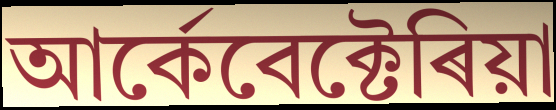
আৰ্কেবেক্টেৰিয়া